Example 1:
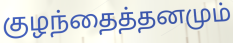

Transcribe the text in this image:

குழந்தைத்தனமும்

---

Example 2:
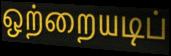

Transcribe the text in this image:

ஒற்றையடிப்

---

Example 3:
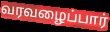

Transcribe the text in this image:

வரவழைப்பார்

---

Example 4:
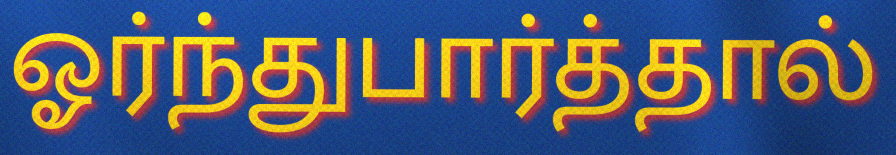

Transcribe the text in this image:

ஓர்ந்துபார்த்தால்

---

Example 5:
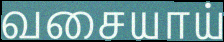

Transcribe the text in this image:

வசையாய்